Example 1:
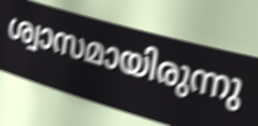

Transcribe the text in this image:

ശ്വാസമായിരുന്നു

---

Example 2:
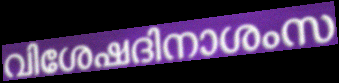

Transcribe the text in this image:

വിശേഷദിനാശംസ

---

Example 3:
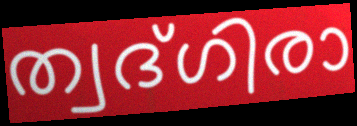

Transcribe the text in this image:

ത്വദ്ഗിരാ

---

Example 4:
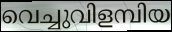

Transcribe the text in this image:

വെച്ചുവിളമ്പിയ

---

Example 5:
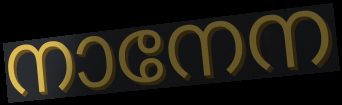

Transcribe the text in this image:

നാനേന